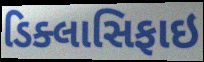
ડિક્લાસિફાઇ